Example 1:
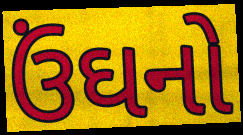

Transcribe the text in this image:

ઉંઘનો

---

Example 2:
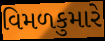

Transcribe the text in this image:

વિમળકુમારે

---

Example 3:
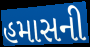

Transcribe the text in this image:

હમાસની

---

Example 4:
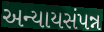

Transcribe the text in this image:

અન્યાયસંપન્ન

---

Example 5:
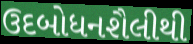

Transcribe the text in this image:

ઉદબોધનશૈલીથી